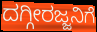
ದಗ್ಗೀರಜ್ಜನಿಗೆ